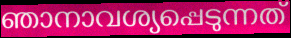
ഞാനാവശ്യപ്പെടുന്നത്